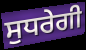
ਸੁਧਰੇਗੀ